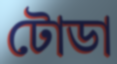
টোডা